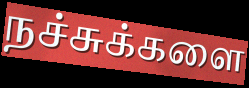
நச்சுக்களை